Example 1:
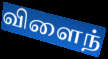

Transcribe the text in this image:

விளைந்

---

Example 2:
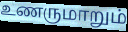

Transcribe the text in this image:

உணருமாறும்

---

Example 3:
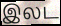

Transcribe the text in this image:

இலட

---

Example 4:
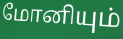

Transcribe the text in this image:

மோனியும்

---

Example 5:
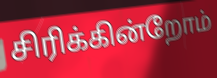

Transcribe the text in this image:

சிரிக்கின்றோம்